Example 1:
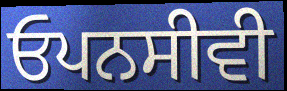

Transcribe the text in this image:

ਓਪਨਸੀਵੀ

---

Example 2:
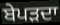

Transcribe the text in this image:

ਬੇਪੜਦਾ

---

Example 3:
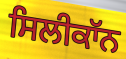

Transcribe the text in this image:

ਸਿਲੀਕਾੱਨ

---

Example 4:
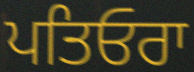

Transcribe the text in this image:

ਪਤਿਓਰਾ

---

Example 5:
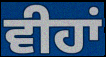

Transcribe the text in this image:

ਵੀਹਾਂ